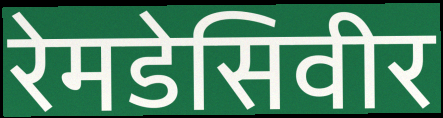
रेमडेसिवीर